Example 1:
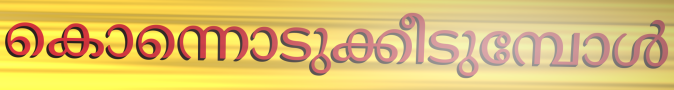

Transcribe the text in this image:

കൊന്നൊടുക്കീടുമ്പോൾ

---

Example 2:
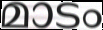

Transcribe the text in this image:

മാടം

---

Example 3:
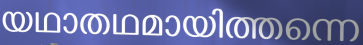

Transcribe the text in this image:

യഥാതഥമായിത്തന്നെ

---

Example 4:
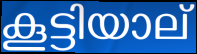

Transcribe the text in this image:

കൂട്ടിയാല്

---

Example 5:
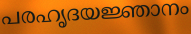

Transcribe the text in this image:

പരഹൃദയജ്ഞാനം